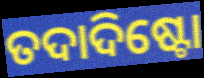
ତଦାଦିଷ୍ଟୋ